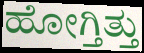
ಹೋಗ್ತಿತ್ತು